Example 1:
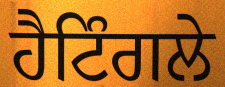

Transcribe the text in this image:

ਹੈਟਿੰਗਲੇ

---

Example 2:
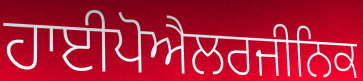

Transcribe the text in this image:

ਹਾਈਪੋਐਲਰਜੀਨਿਕ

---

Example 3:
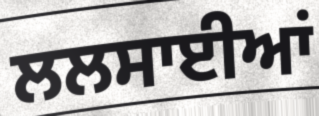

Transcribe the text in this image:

ਲਲਸਾਈਆਂ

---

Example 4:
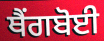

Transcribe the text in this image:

ਥੈਂਗਬੋਈ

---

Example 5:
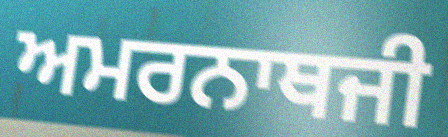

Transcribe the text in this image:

ਅਮਰਨਾਥਜੀ